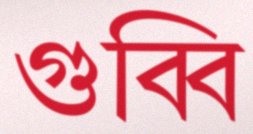
গুব্বি